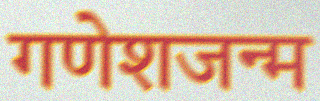
गणेशजन्म